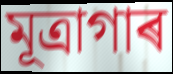
মূত্ৰাগাৰ